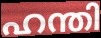
ഹന്തി